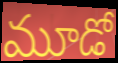
మూడో